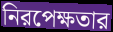
নিরপেক্ষতার